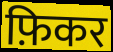
फ़िकर